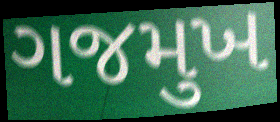
ગજમુખ